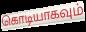
கொடியாகவும்